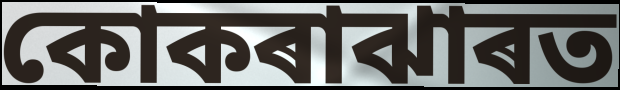
কোকৰাঝাৰত